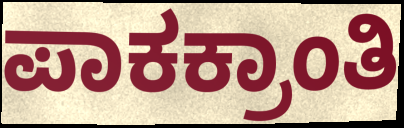
ಪಾಕಕ್ರಾಂತಿ